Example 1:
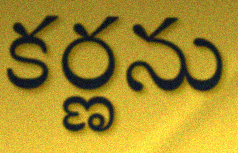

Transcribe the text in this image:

కర్ణను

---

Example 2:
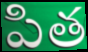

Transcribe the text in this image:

పిత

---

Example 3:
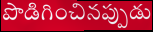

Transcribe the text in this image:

పొడిగించినప్పుడు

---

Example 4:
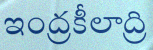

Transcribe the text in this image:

ఇంద్రకీలాద్రి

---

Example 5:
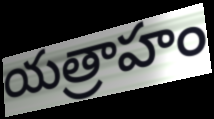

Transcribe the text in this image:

యత్రాహం